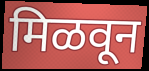
मिळवून